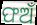
ଫଅଁ